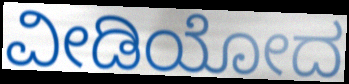
ವೀಡಿಯೋದ